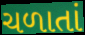
ચળાતાં